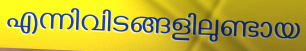
എന്നിവിടങ്ങളിലുണ്ടായ